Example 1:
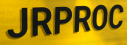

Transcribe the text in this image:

JRPROC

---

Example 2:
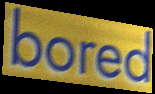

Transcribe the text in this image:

bored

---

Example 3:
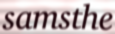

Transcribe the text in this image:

samsthe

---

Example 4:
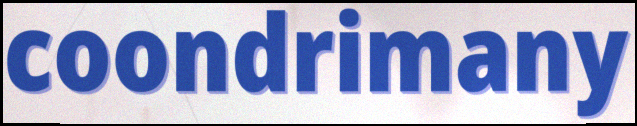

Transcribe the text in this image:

coondrimany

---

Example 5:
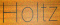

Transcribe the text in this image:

Holtz